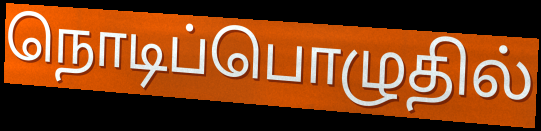
நொடிப்பொழுதில்